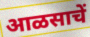
आळसाचें